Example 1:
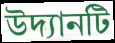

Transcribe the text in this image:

উদ্যানটি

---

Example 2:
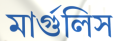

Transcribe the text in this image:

মার্গুলিস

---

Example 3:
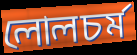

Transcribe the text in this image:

লোলচর্ম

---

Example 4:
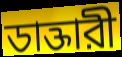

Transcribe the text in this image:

ডাক্তারী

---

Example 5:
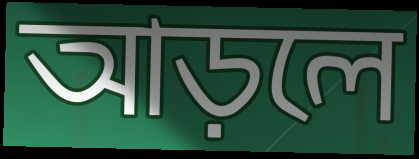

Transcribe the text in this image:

আড়লে